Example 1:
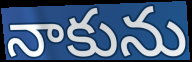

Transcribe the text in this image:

నాకును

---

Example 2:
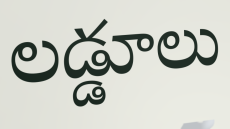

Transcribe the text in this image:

లడ్డూలు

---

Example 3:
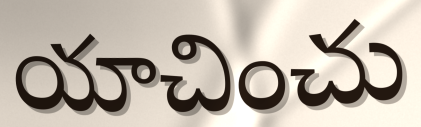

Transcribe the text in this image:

యాచించు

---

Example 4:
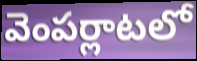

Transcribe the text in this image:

వెంపర్లాటలో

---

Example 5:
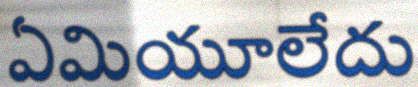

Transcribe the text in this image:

ఏమియూలేదు